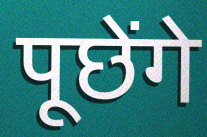
पूछेंगे